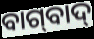
ବାଗ୍‌ବାଦ୍